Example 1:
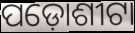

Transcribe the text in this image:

ପଡ଼ୋଶୀଟା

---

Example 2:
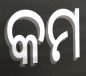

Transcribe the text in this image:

କମ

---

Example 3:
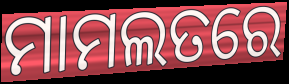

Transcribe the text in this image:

ମାମଲତରେ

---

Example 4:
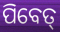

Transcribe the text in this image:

ପିବେତ୍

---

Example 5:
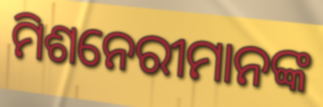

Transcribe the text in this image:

ମିଶନେରୀମାନଙ୍କ